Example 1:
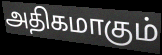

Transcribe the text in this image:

அதிகமாகும்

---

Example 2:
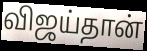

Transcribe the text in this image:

விஜய்தான்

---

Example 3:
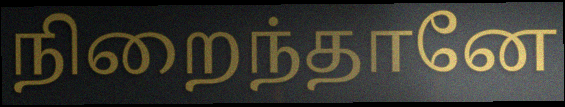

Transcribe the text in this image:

நிறைந்தானே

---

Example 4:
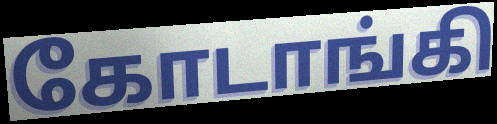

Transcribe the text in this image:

கோடாங்கி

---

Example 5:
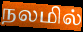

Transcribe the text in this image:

நலமில்